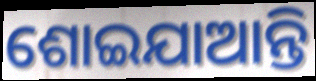
ଶୋଇଯାଆନ୍ତି